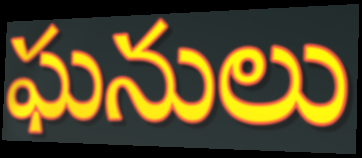
ఘనులు